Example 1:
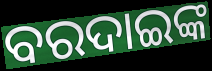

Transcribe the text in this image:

ବରଦାଇଙ୍କ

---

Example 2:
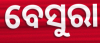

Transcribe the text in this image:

ବେସୁରା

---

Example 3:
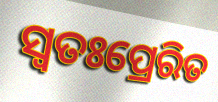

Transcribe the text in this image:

ସ୍ୱତଃପ୍ରେରିତ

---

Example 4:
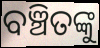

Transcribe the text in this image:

ବଞ୍ଚିତଙ୍କୁ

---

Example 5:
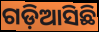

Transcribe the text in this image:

ଗଡ଼ିଆସିଛି